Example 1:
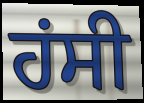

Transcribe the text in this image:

ਹਂਸੀ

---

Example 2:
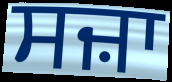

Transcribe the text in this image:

ਸਜ਼ਾ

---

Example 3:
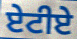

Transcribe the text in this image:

ਏਟੀਏ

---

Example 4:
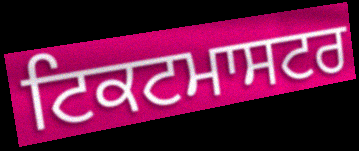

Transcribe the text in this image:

ਟਿਕਟਮਾਸਟਰ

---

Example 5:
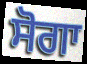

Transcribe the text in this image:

ਸੋਗਾ